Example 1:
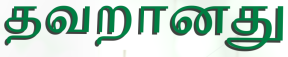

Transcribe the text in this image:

தவறானது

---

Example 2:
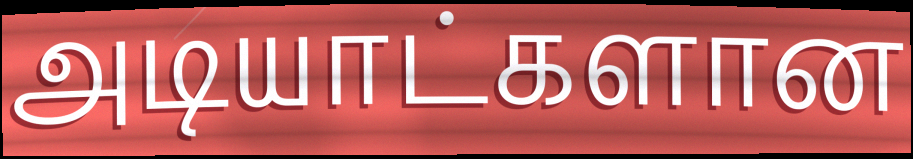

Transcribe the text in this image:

அடியாட்களான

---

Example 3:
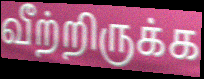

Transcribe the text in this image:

வீற்றிருக்க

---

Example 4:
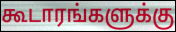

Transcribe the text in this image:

கூடாரங்களுக்கு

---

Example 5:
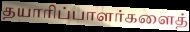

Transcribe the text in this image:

தயாரிப்பாளர்களைத்